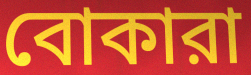
বোকারা